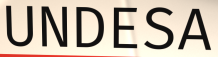
UNDESA